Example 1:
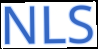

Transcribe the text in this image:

NLS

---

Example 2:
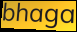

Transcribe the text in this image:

bhaga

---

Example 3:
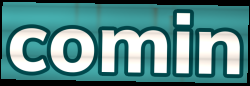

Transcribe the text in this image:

comin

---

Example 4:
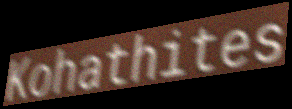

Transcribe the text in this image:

Kohathites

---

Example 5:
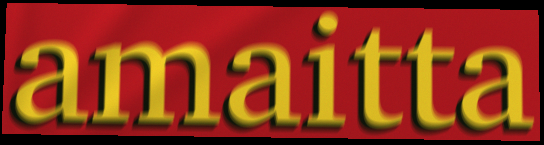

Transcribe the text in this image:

amaitta